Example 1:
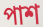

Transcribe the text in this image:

পাশ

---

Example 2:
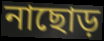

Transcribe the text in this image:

নাছোড়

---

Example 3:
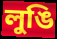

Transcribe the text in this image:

লুঙি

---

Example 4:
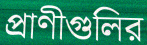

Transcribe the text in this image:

প্রাণীগুলির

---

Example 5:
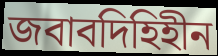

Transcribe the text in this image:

জবাবদিহিহীন